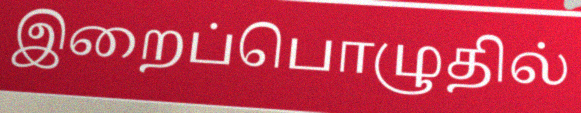
இறைப்பொழுதில்